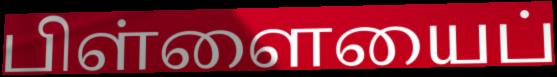
பிள்ளையைப்